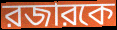
রজারকে